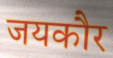
जयकौर